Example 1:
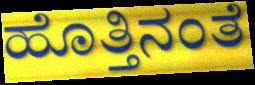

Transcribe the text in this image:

ಹೊತ್ತಿನಂತೆ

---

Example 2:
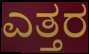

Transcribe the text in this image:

ಎತ್ತರ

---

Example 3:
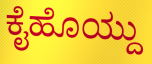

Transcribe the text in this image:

ಕೈಹೊಯ್ದು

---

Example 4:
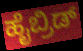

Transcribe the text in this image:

ಹೈಬ್ರಿಡ್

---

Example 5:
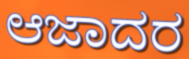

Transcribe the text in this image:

ಆಜಾದರ